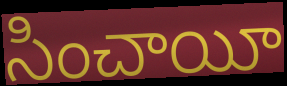
సించాయీ